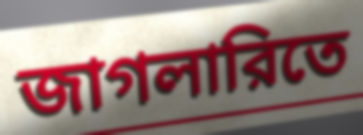
জাগলারিতে